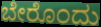
ಬೇರೊಂದು